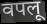
वपलू